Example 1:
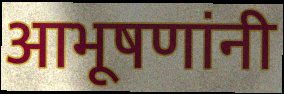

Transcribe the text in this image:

आभूषणांनी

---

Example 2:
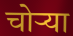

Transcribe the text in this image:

चोऱ्या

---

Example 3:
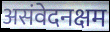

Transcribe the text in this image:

असंवेदनक्षम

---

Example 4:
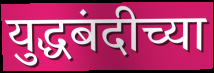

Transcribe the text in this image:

युद्धबंदीच्या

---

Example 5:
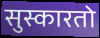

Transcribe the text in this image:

सुस्कारतो